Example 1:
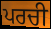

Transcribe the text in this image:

ਪਰਚੀ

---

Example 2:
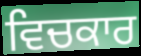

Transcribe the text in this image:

ਵਿਚਕਾਰ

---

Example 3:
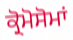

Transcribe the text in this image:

ਕ੍ਰੋਮੋਸੋਮਾਂ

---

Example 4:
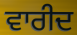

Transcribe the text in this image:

ਵਾਰੀਦ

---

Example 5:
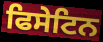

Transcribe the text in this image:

ਫਿਸੇਟਿਨ